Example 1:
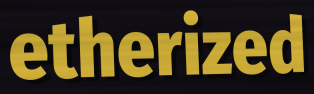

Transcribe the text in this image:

etherized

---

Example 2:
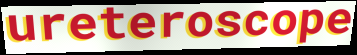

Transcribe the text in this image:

ureteroscope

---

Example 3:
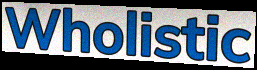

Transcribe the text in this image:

Wholistic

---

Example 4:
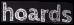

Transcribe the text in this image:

hoards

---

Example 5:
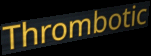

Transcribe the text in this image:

Thrombotic